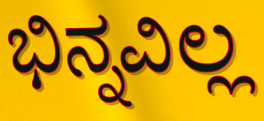
ಭಿನ್ನವಿಲ್ಲ